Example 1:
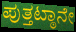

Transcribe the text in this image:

ಪುತ್ತಟ್ಠಾನೇ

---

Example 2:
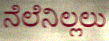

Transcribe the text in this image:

ನೆಲೆನಿಲ್ಲಲು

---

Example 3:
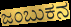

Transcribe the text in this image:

ಜಂಬುಕನ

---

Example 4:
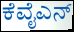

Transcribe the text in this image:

ಕೆವೈಎನ್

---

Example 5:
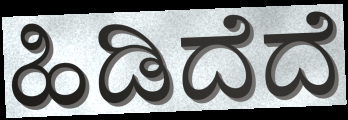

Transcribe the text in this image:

ಹಿಡಿದೆದೆ